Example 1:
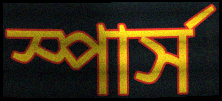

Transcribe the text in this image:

স্পার্স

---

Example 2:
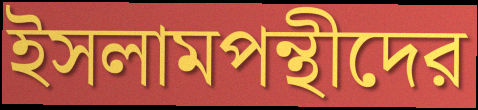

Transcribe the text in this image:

ইসলামপন্থীদের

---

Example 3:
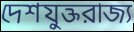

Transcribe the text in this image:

দেশযুক্তরাজ্য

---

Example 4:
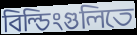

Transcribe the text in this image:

বিল্ডিংগুলিতে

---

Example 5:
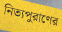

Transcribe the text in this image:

নিত্যপুরাণের